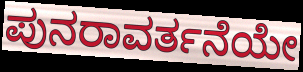
ಪುನರಾವರ್ತನೆಯೇ